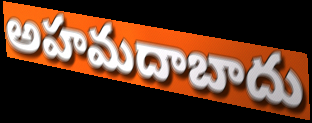
అహమదాబాదు